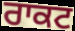
ਰਾਕਟ